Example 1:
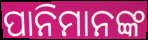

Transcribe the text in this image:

ପାନିମାନଙ୍କ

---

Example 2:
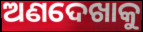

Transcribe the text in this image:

ଅଣଦେଖାକୁ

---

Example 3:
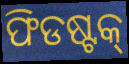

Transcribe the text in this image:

ଫିଡଷ୍ଟକ୍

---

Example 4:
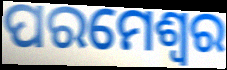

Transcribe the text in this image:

ପରମେଶ୍ବର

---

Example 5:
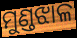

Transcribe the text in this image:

ମୁଣ୍ଡଝାଳ